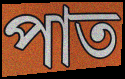
পাত